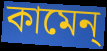
কামেন্